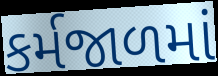
કર્મજાળમાં